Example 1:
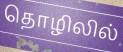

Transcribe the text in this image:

தொழிலில்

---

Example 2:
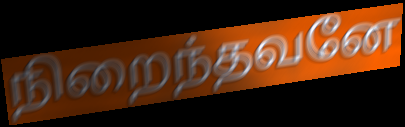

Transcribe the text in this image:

நிறைந்தவனே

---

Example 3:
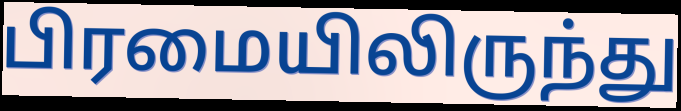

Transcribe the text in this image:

பிரமையிலிருந்து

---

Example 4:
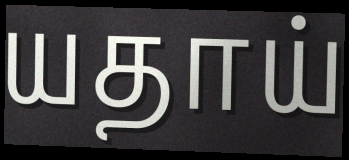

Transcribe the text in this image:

யதாய்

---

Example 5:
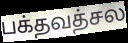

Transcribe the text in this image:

பக்தவத்சல